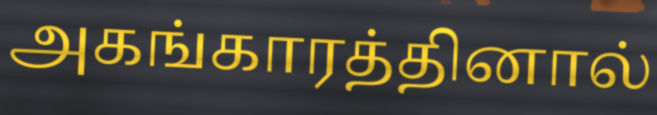
அகங்காரத்தினால்